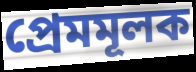
প্ৰেমমূলক